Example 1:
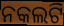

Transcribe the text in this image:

ନକଲଟି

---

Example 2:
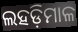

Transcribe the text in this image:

ଲହଡ଼ିମାଳ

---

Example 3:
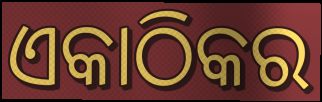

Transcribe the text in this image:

ଏକାଠିକର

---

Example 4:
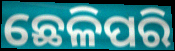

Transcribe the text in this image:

ଛେଳିପରି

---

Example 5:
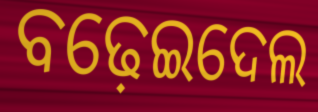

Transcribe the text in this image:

ବଢ଼େଇଦେଲ